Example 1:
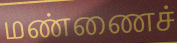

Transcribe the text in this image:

மண்ணைச்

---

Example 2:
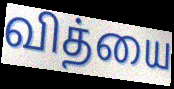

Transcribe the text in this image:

வித்யை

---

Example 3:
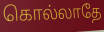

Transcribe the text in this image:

கொல்லாதே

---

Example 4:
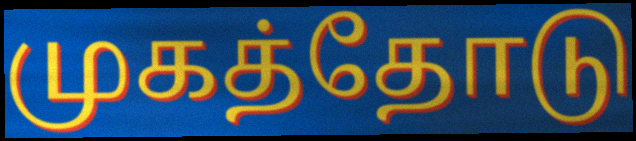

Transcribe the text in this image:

முகத்தோடு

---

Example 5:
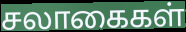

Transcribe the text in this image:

சலாகைகள்